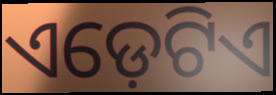
ଏଡ଼େଟିଏ